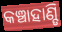
କଞ୍ଚାହାଣ୍ଡି